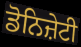
ਡੋਨਿਜ਼ੇਟੀ